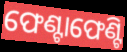
ଫେଣ୍ଟାଫେଣ୍ଟି